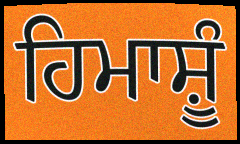
ਹਿਮਾਸ਼ੂੰ